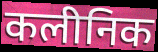
कलीनिक